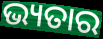
ଭ୍ୟତାର